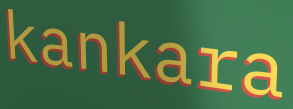
kankara